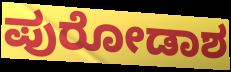
ಪುರೋಡಾಶ